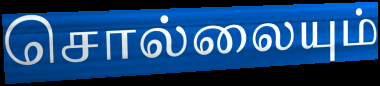
சொல்லையும்